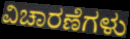
ವಿಚಾರಣೆಗಳು